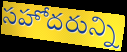
సహోదరున్ని